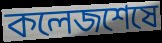
কলেজশেষে